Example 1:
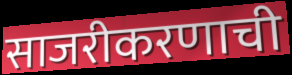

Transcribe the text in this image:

साजरीकरणाची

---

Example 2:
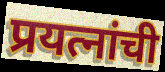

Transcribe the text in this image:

प्रयत्नांची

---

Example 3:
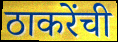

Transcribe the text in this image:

ठाकरेंची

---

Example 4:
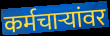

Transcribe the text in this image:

कर्मचाऱ्यांवर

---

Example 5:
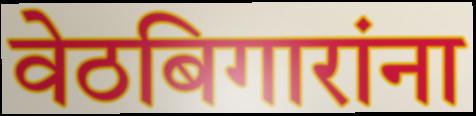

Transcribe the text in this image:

वेठबिगारांना